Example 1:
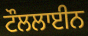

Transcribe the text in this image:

ਟੌਲਲਾਈਨ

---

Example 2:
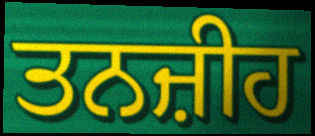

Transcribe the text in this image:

ਤਨਜ਼ੀਹ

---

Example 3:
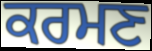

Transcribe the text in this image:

ਕਰਮਣ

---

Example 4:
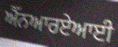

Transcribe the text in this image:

ਐੱਨਆਰਏਆਈ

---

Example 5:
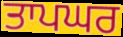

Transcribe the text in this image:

ਤਾਪਘਰ